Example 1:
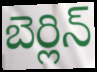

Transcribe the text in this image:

బెర్లిన్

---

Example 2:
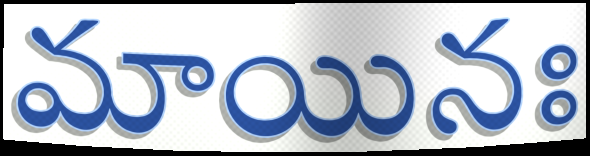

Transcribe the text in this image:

మాయినః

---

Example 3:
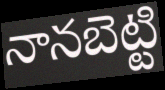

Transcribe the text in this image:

నానబెట్టి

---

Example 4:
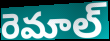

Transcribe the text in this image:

రెమాల్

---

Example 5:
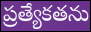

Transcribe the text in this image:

ప్రత్యేకతను